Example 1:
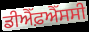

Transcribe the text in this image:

ਡੀਐੱਫ਼ਐੱਸਸੀ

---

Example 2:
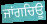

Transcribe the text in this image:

ਜਾਂਗਚਿਊ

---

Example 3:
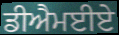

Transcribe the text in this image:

ਡੀਐਮਈਏ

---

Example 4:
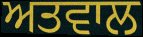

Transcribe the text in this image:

ਅਤਵਾਲ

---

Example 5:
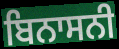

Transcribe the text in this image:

ਬਿਨਾਸਨੀ